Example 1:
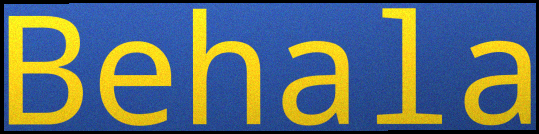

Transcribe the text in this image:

Behala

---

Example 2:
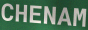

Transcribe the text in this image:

CHENAM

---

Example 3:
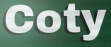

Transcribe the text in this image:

Coty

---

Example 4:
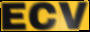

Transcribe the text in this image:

ECV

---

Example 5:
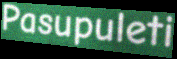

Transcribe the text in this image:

Pasupuleti